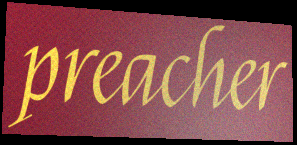
preacher